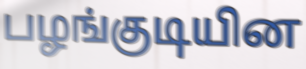
பழங்குடியின